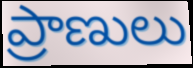
ప్రాణులు